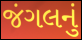
જંગલનું